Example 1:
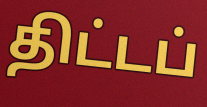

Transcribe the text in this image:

திட்டப்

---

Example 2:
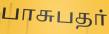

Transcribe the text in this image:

பாசுபதர்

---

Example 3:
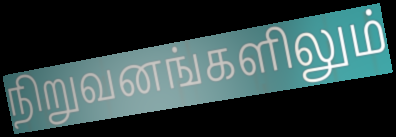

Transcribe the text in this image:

நிறுவனங்களிலும்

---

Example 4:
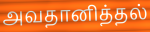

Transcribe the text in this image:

அவதானித்தல்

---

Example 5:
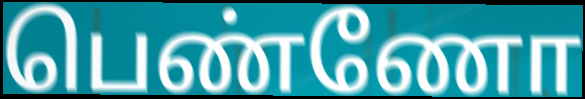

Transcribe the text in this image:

பெண்ணோ